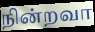
நின்றவா